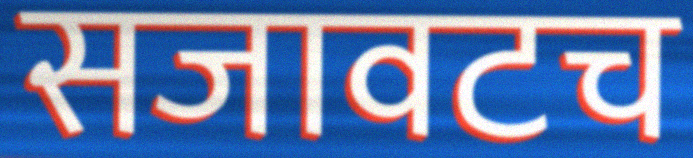
सजावटच